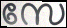
സേ